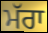
ਮੱਰਾ